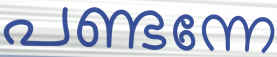
പണ്ടന്നേ